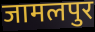
जामलपुर